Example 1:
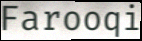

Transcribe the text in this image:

Farooqi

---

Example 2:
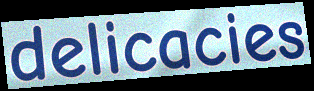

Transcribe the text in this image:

delicacies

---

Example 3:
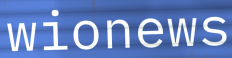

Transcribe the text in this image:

wionews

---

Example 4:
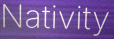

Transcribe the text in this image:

Nativity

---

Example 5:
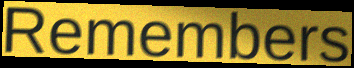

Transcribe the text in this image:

Remembers